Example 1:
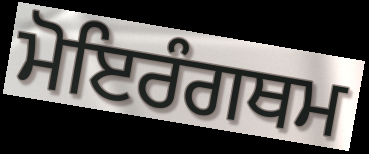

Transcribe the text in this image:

ਮੋਇਰੰਗਥਮ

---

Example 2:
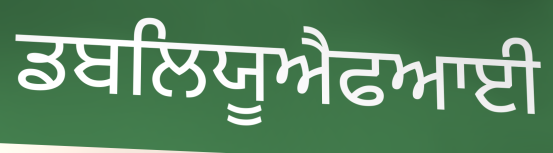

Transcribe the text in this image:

ਡਬਲਿਯੂਐਫਆਈ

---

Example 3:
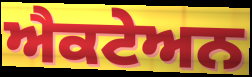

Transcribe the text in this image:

ਐਕਟੇਅਨ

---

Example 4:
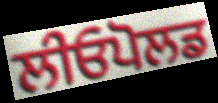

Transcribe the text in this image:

ਲੀਓਪੋਲਡ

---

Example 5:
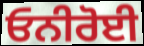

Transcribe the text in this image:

ਓਨੀਰੋਈ